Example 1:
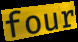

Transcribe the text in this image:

four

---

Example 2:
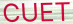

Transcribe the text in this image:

CUET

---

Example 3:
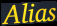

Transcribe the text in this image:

Alias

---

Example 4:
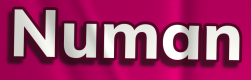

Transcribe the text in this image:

Numan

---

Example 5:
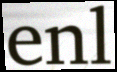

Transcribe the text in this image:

enl